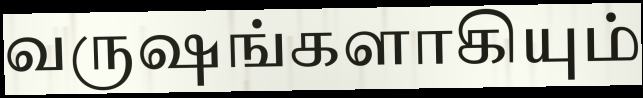
வருஷங்களாகியும்